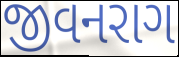
જીવનરાગ